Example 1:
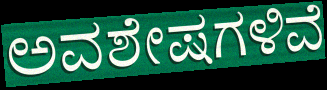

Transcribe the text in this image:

ಅವಶೇಷಗಳಿವೆ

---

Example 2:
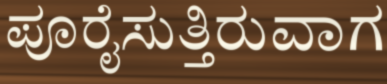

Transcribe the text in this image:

ಪೂರೈಸುತ್ತಿರುವಾಗ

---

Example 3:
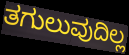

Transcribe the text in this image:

ತಗುಲುವುದಿಲ್ಲ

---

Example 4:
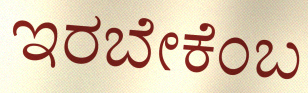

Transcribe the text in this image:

ಇರಬೇಕೆಂಬ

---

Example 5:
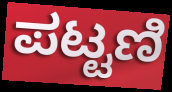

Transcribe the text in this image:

ಪಟ್ಟಣಿ